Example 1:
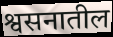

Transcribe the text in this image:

श्वसनातील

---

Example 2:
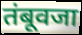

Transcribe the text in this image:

तंबूवजा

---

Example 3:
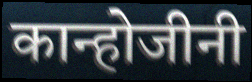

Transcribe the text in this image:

कान्होजीनी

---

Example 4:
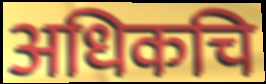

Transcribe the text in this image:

अधिकचि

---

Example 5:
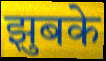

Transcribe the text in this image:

झुबके